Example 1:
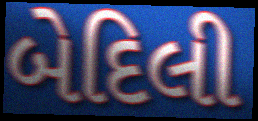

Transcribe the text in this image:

બેદિલી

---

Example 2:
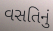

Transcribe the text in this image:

વસતિનું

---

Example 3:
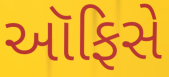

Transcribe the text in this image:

ઑફિસે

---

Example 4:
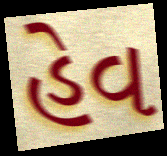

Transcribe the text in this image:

હેવ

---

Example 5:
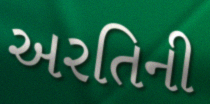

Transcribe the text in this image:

અરતિની